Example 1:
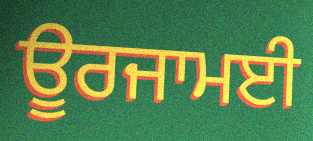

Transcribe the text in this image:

ਊਰਜਾਮਈ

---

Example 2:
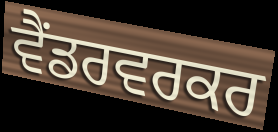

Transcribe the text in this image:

ਵੈਂਡਰਵਰਕਰ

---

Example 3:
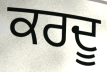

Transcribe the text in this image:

ਕਰਦੂ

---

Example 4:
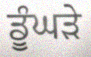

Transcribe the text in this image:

ਡੂੰਘੜੇ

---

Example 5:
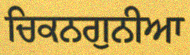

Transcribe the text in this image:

ਚਿਕਨਗੁਨੀਆ